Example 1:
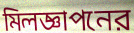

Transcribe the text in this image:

মিলজ্ঞাপনের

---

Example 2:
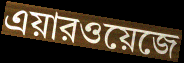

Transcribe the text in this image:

এয়ারওয়েজে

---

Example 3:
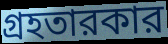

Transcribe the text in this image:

গ্রহতারকার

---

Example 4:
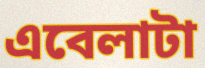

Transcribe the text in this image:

এবেলাটা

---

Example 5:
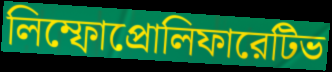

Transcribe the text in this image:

লিম্ফোপ্রোলিফারেটিভ